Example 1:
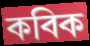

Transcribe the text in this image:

কবিক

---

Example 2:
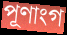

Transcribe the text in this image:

পূণাংগ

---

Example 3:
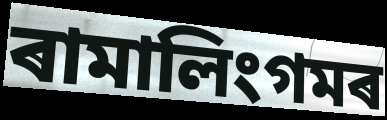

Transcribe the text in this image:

ৰামালিংগমৰ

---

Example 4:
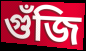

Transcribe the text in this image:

গুঁজি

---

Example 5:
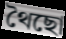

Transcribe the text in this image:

থৈছো